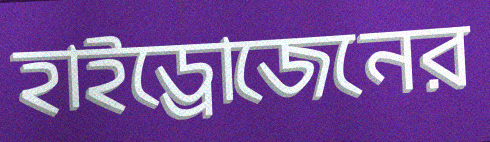
হাইড্রোজেনের